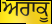
ਅਰਾਕੂ